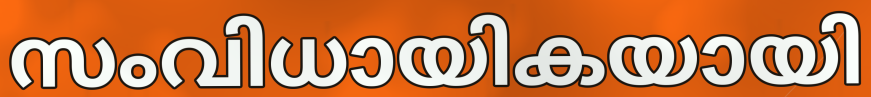
സംവിധായികയായി